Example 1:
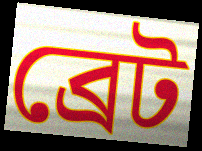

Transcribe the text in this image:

ব্রেট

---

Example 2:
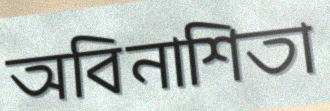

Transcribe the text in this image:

অবিনাশিতা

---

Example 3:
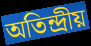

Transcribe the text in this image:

অতিন্দ্রীয়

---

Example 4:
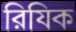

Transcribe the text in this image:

রিযিক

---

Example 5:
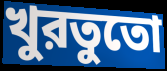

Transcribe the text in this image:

খুরতুতো